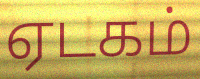
ஏடகம்